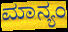
ಮಾನ್ಯಂ